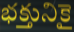
భక్తునికై